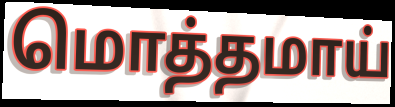
மொத்தமாய்